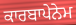
ਕਾਰਬਾਪੇਨੇਮ